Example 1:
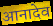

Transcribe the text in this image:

आनादेव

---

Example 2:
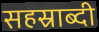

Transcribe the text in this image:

सहस्राब्दी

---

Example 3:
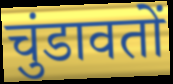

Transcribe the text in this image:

चुंडावतों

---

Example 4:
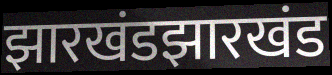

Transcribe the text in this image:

झारखंडझारखंड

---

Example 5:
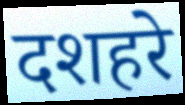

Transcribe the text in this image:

दशहरे